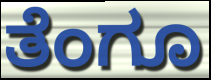
ತೆಂಗೂ